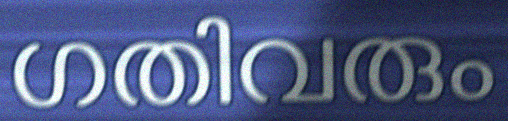
ഗതിവരും